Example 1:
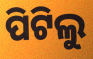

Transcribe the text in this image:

ପିଟିଲୁ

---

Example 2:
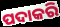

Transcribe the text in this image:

ପଦାକରି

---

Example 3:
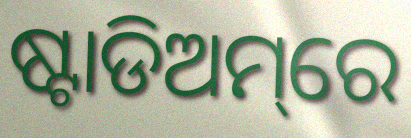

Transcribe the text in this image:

ଷ୍ଟାଡିଅମ୍‌ରେ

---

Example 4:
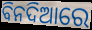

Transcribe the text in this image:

ବିନଦିଆରେ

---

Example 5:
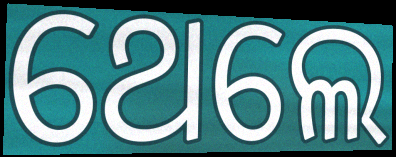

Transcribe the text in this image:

ଥେଲେ